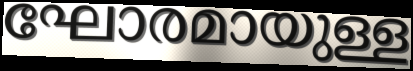
ഘോരമായുള്ള